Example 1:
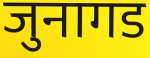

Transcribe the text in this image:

जुनागड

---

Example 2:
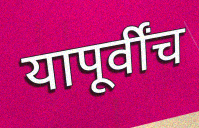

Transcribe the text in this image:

यापूर्वींच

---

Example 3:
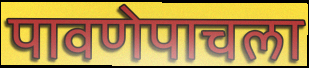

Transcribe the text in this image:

पावणेपाचला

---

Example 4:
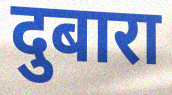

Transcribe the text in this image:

दुबारा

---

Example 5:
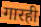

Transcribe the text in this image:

गारही